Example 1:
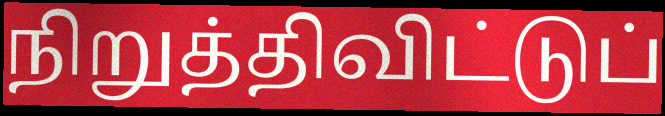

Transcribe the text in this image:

நிறுத்திவிட்டுப்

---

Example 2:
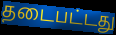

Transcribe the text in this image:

தடைபட்டது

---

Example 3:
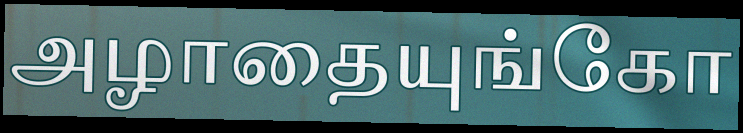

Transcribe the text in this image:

அழாதையுங்கோ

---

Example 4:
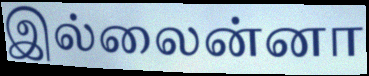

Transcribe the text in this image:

இல்லைன்னா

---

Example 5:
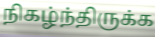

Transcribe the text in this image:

நிகழ்ந்திருக்க